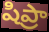
షిప్రా